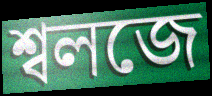
শ্বলজে